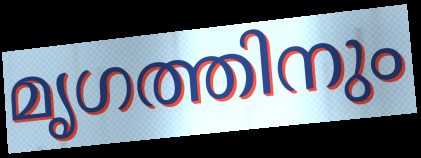
മൃഗത്തിനും